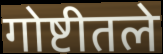
गोष्टीतले